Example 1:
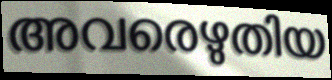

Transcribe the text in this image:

അവരെഴുതിയ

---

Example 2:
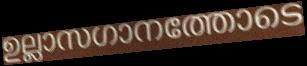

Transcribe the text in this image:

ഉല്ലാസഗാനത്തോടെ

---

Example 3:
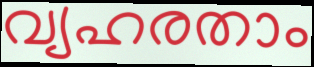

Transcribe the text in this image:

വ്യഹരതാം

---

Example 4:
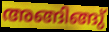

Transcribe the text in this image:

അങ്ങിങ്ങു്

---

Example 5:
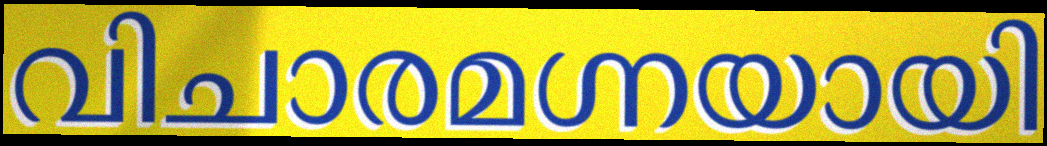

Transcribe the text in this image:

വിചാരമഗ്നയായി